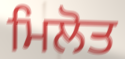
ਮਿਲੋਤ